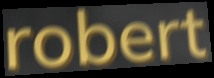
robert